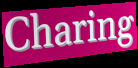
Charing